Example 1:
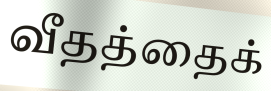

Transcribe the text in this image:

வீதத்தைக்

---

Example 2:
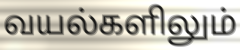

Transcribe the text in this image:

வயல்களிலும்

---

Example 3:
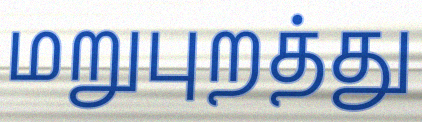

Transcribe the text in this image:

மறுபுறத்து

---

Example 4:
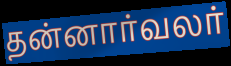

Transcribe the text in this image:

தன்னார்வலர்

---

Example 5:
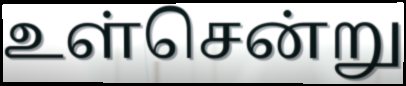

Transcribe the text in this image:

உள்சென்று